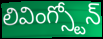
లివింగ్స్టోన్